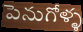
పెనుగోళ్ళ